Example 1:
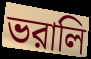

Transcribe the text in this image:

ভরালি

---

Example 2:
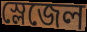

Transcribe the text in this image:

স্লেজেল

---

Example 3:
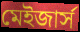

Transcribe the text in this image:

মেইজার্স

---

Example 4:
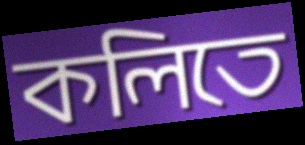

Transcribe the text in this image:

কলিতে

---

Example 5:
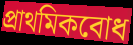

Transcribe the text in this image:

প্রাথমিকবোধ